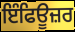
ਇੰਫਿਊਜ਼ਰ